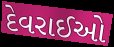
દેવરાઈઓ